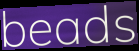
beads